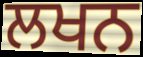
ਲਖਨ